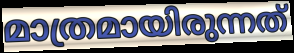
മാത്രമായിരുന്നത്